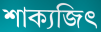
শাক্যজিৎ